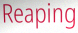
Reaping